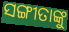
ସଙ୍ଗୀତାଙ୍କୁ